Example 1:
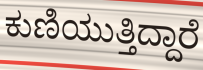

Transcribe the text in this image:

ಕುಣಿಯುತ್ತಿದ್ದಾರೆ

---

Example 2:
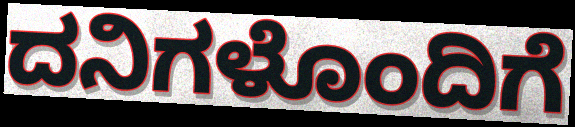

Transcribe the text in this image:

ದನಿಗಳೊಂದಿಗೆ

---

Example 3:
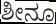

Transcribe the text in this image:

ಶೀನೂ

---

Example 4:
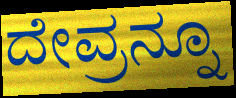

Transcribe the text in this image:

ದೇವ್ರನ್ನೂ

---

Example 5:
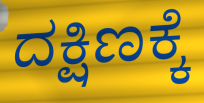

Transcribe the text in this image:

ದಕ್ಷಿಣಕ್ಕೆ